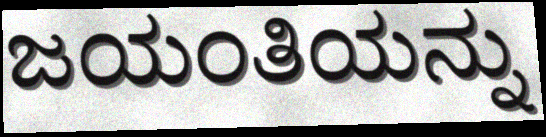
ಜಯಂತಿಯನ್ನು